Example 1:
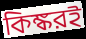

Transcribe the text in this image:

কিঙ্করই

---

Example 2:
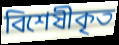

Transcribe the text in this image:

বিশেষীকৃত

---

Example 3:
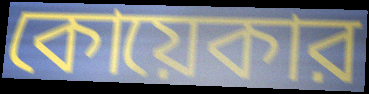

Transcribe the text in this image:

কোয়েকার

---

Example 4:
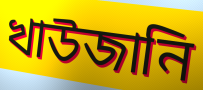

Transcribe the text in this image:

খাউজানি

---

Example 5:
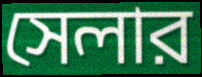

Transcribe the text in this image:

সেলার